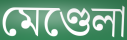
মেণ্ডেলা